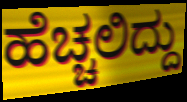
ಹೆಚ್ಚಲಿದ್ದು